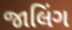
જાલિંગ